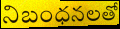
నిబంధనలతో